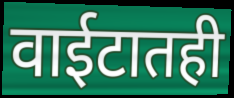
वाईटातही